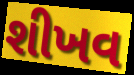
શીખવ